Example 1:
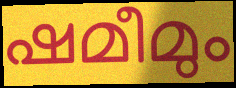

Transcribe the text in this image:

ഷമീമും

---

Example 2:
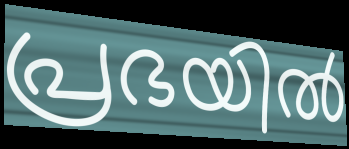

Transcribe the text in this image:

പ്രഭയിൽ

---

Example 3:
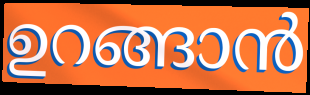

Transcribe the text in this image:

ഉറങ്ങാൻ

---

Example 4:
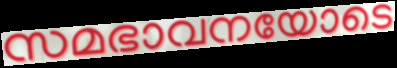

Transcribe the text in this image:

സമഭാവനയോടെ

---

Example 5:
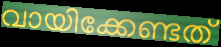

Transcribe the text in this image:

വായിക്കേണ്ടത്